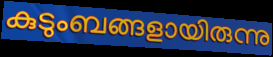
കുടുംബങ്ങളായിരുന്നു